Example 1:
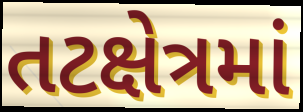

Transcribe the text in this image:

તટક્ષેત્રમાં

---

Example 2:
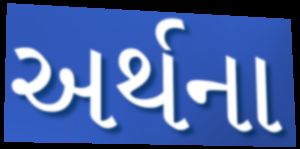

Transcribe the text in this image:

અર્થના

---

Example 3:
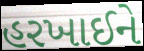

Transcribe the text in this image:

હરખાઈને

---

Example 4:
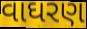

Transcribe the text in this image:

વાઘરણ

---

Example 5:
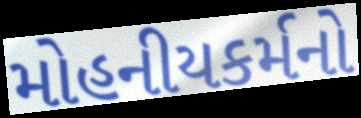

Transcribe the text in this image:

મોહનીયકર્મનો